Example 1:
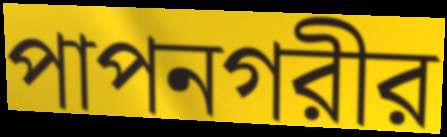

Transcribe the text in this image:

পাপনগরীর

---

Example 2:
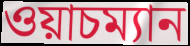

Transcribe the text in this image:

ওয়াচম্যান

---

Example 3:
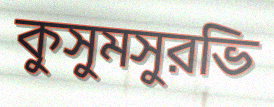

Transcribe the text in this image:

কুসুমসুরভি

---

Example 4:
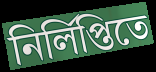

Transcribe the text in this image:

নির্লিপ্তিতে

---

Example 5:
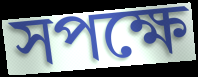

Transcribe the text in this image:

সপক্ষে